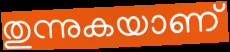
തുന്നുകയാണ്